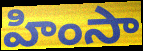
హింసా